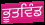
ਭੂਤਵਿੰਡ